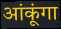
आंकूंगा